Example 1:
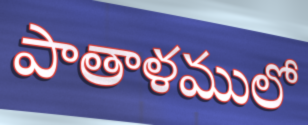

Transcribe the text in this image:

పాతాళములో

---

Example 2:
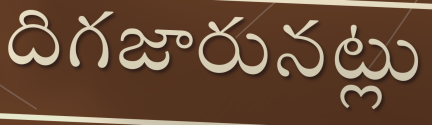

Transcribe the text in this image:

దిగజారునట్లు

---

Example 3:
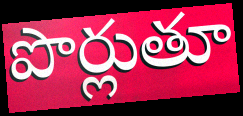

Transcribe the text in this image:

పొర్లుతూ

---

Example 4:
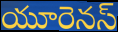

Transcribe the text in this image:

యూరెనస్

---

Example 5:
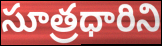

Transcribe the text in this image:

సూత్రధారిని